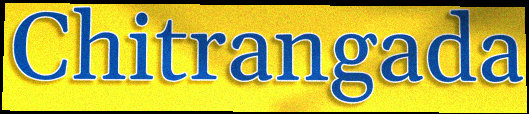
Chitrangada